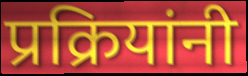
प्रक्रियांनी